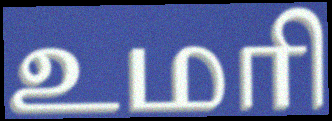
உமரி